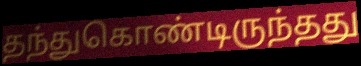
தந்துகொண்டிருந்தது